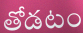
తోడటం